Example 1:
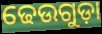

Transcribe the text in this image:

ଢେଉଗୁଡ଼ା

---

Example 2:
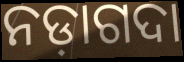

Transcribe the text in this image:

ନଡ଼ାଗଦା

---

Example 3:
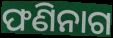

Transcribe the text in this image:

ଫଣିନାଗ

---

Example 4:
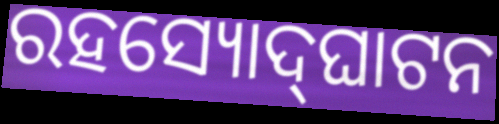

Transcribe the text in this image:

ରହସ୍ୟୋଦ୍‍ଘାଟନ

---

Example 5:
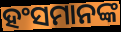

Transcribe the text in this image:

ହଂସମାନଙ୍କ